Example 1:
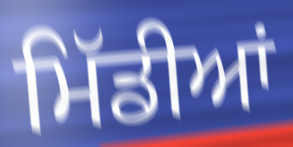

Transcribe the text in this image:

ਮਿੱਡੀਆਂ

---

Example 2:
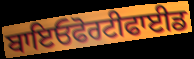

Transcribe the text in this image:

ਬਾਇਓਫੋਰਟੀਫਾਈਡ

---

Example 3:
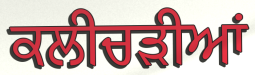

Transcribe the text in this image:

ਕਲੀਚੜੀਆਂ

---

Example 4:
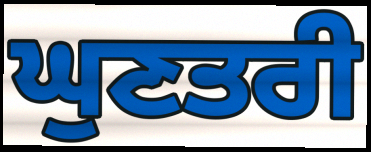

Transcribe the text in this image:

ਘੁਣਤਰੀ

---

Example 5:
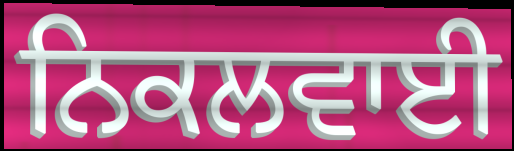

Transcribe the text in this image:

ਨਿਕਲਵਾਈ